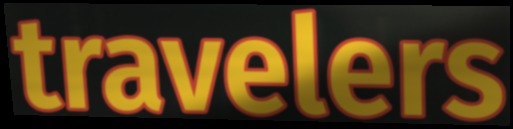
travelers